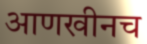
आणखीनच